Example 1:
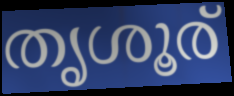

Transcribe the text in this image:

തൃശൂര്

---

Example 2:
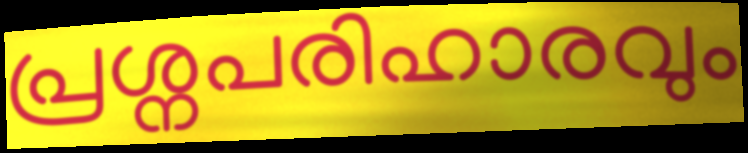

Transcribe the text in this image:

പ്രശ്നപരിഹാരവും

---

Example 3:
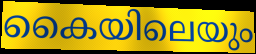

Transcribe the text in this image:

കൈയിലെയും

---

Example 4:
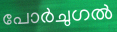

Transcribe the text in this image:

പോർചുഗൽ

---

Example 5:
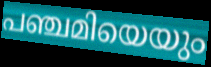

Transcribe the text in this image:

പഞ്ചമിയെയും